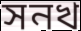
সনখ